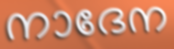
നാദേന